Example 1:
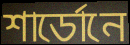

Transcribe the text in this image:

শার্ডোনে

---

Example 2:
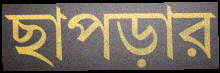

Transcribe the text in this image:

ছাপড়ার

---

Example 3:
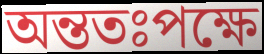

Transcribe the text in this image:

অন্ততঃপক্ষে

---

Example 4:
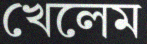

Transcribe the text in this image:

খেলেম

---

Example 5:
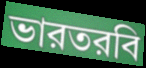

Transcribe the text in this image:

ভারতরবি